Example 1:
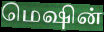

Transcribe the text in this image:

மெஷின்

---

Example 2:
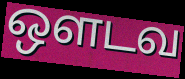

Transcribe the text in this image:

ஔடவ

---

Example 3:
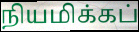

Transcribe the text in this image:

நியமிக்கப்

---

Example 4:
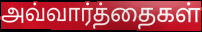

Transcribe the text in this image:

அவ்வார்த்தைகள்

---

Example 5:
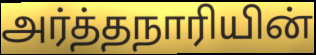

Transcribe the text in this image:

அர்த்தநாரியின்